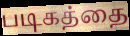
படிகத்தை